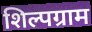
शिल्पग्राम